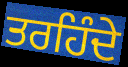
ਤਰਹਿੰਦੇ